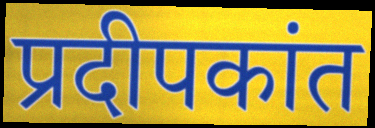
प्रदीपकांत